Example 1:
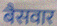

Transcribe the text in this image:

बैसवार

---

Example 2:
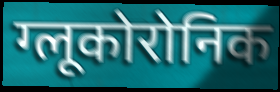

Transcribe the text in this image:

ग्लूकोरोनिक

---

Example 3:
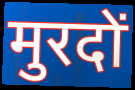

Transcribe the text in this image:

मुरदों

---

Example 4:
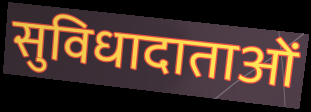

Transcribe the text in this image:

सुविधादाताओं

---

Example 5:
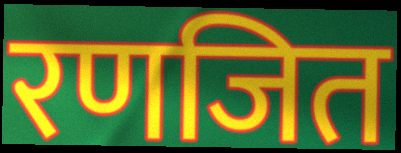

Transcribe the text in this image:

रणजित